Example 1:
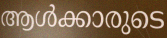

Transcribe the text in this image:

ആൾക്കാരുടെ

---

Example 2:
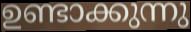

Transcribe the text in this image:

ഉണ്ടാക്കുന്നു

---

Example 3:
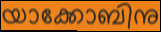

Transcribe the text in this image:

യാക്കോബിനു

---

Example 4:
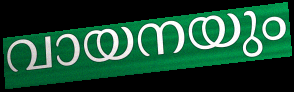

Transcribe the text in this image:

വായനയും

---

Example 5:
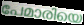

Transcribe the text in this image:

പേമാരിയെ